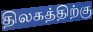
திலகத்திற்கு